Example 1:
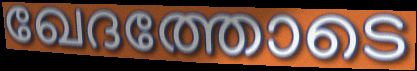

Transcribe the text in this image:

ഖേദത്തോടെ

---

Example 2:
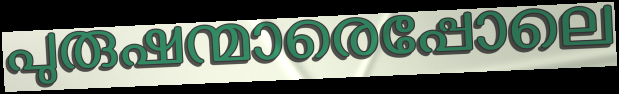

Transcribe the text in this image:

പുരുഷന്മാരെപ്പോലെ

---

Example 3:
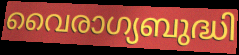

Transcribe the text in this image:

വൈരാഗ്യബുദ്ധി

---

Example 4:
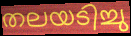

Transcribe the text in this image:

തലയടിച്ചു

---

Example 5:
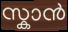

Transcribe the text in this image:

സ്കാൻ